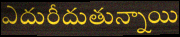
ఎదురీదుతున్నాయి